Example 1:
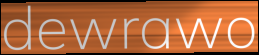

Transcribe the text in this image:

dewrawo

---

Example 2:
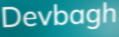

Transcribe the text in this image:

Devbagh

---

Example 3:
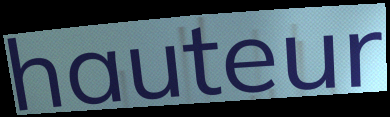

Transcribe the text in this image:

hauteur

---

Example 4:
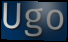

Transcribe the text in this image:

Ugo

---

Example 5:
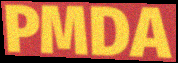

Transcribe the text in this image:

PMDA